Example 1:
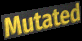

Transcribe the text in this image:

Mutated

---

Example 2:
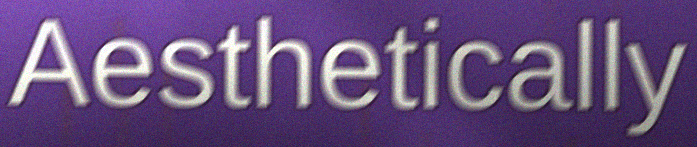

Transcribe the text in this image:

Aesthetically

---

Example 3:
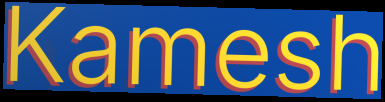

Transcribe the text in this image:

Kamesh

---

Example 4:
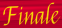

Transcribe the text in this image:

Finale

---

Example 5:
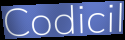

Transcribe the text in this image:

Codicil